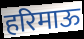
हरिमाऊ